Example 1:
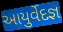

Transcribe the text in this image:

આયુર્વેદજ્ઞ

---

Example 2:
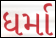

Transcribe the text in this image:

ધર્મા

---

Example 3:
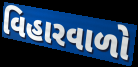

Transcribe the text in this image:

વિહારવાળો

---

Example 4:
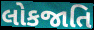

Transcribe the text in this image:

લોકજાતિ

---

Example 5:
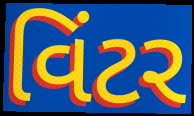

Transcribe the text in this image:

વિંટર